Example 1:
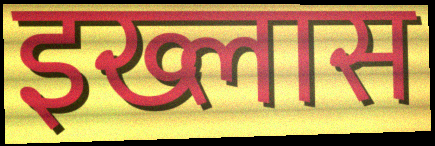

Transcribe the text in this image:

इख्लास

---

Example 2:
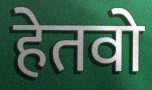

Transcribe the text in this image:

हेतवो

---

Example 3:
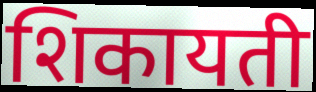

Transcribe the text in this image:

शिकायती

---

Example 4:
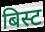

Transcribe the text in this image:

बिस्ट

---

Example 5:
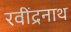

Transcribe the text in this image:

रवींद्रनाथ